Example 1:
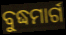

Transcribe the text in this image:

ବୁଦ୍ଧମାର୍ଗ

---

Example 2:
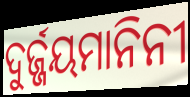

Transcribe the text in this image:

ଦୁର୍ଜ୍ଜୟମାନିନୀ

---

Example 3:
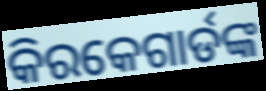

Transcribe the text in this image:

କିରକେଗାର୍ଡଙ୍କ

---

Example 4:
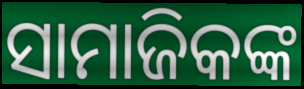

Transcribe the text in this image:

ସାମାଜିକଙ୍କ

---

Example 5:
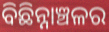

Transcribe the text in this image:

ବିଛିନ୍ନାଞ୍ଚଳର